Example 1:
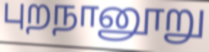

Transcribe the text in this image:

புறநானூறு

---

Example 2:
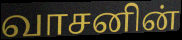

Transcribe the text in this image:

வாசனின்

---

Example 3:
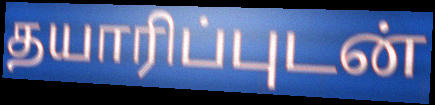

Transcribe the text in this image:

தயாரிப்புடன்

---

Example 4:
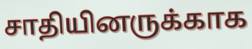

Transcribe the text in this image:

சாதியினருக்காக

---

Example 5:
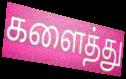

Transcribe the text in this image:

களைத்து